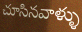
చూసినవాళ్ళు